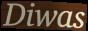
Diwas